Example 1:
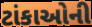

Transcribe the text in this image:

ટાંકાઓની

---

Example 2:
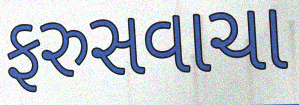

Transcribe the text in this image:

ફરુસવાચા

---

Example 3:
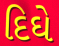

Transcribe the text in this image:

દિઘે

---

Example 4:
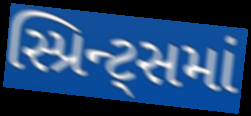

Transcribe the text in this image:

સ્પ્રિન્ટ્સમાં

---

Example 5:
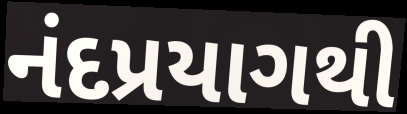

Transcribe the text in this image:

નંદપ્રયાગથી